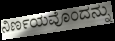
ನಿರ್ಣಯವೊಂದನ್ನು